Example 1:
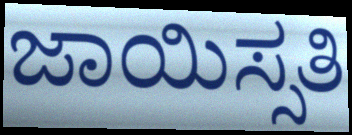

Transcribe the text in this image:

ಜಾಯಿಸ್ಸತಿ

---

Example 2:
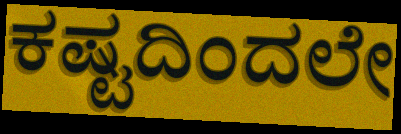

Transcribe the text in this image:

ಕಷ್ಟದಿಂದಲೇ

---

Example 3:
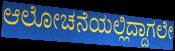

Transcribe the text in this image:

ಆಲೋಚನೆಯಲ್ಲಿದ್ದಾಗಲೇ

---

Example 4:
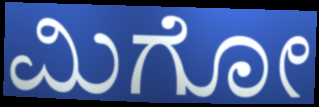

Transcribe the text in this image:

ಮಿಗೋ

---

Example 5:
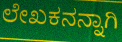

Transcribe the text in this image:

ಲೇಖಕನನ್ನಾಗಿ